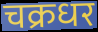
चक्रधर